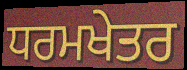
ਧਰਮਖੇਤਰ